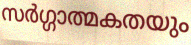
സർഗ്ഗാത്മകതയും